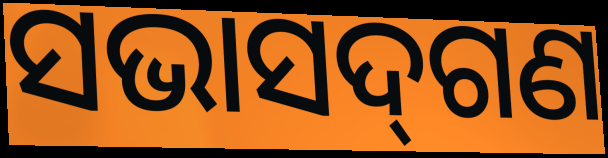
ସଭାସଦ୍‌ଗଣ